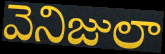
వెనిజులా